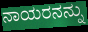
ನಾಯರನನ್ನು